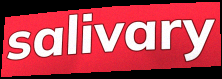
salivary